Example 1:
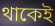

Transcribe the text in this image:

থাকেই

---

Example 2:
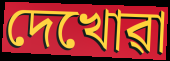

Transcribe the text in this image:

দেখোৱা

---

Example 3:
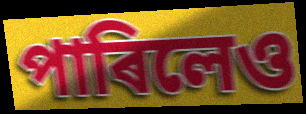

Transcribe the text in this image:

পাৰিলেও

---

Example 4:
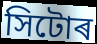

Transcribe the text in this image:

সিটোৰ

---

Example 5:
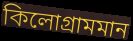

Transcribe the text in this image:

কিলোগ্ৰামমান